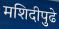
मशिदीपुढे